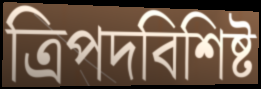
ত্রিপদবিশিষ্ট